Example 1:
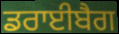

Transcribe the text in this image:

ਡਰਾਈਬੈਗ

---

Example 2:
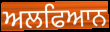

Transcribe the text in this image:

ਅਲਫਿਆਨ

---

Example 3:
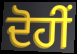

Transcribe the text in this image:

ਦੋਹੀਂ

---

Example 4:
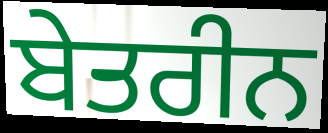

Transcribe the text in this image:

ਬੇਤਰੀਨ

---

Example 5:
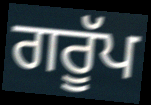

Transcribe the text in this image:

ਗਰੂੱਪ